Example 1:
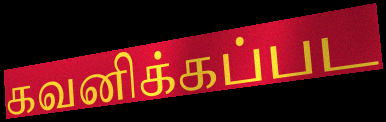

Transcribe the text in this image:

கவனிக்கப்பட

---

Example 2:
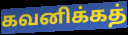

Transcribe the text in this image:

கவனிக்கத்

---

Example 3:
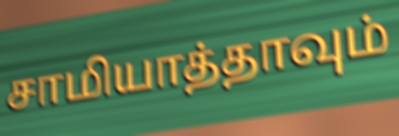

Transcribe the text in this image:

சாமியாத்தாவும்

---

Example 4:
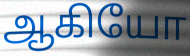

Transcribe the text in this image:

ஆகியோ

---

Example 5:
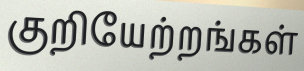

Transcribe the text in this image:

குறியேற்றங்கள்